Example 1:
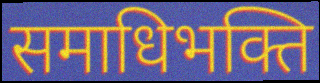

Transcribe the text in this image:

समाधिभक्ति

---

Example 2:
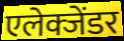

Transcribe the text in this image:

एलेक्‍जेंडर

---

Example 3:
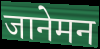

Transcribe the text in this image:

जानेमन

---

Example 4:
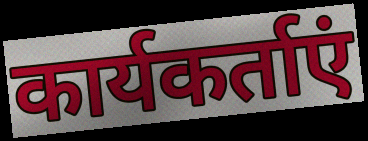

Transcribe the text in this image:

कार्यकर्ताएं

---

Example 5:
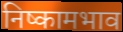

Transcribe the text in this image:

निष्कामभाव